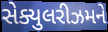
સેક્યુલરીઝમને